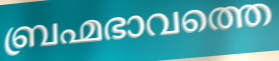
ബ്രഹ്മഭാവത്തെ